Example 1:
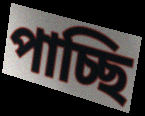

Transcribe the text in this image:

পাচ্ছি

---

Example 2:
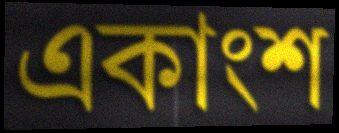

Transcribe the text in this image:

একাংশ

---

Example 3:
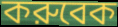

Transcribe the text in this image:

করুবেক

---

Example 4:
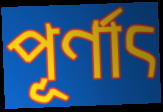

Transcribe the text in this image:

পূর্ণাৎ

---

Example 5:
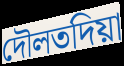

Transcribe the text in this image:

দৌলতদিয়া